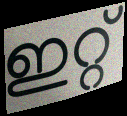
ഇറ്റ്